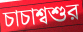
চাচাশ্বশুর